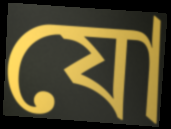
যো